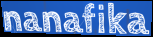
nanafika